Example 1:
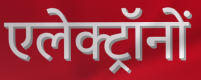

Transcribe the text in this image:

एलेक्ट्रॉनों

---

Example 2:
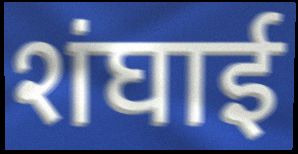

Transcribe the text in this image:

शंघाई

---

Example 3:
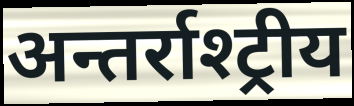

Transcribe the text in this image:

अन्तर्राश्ट्रीय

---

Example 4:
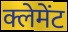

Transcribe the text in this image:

क्लेमेंट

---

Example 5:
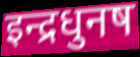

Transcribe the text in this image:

इन्द्रधुनष